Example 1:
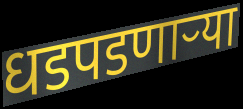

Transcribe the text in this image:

धडपडणाऱ्या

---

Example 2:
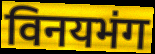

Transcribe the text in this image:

विनयभंग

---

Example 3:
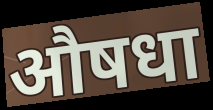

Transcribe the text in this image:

औषधा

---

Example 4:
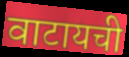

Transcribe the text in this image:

वाटायची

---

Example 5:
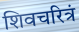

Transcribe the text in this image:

शिवचरित्रं